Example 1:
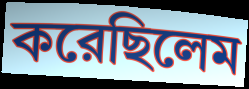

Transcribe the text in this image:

করেছিলেম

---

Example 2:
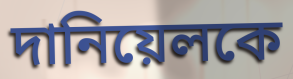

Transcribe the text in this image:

দানিয়েলকে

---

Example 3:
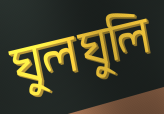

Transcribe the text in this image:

ঘুলঘুলি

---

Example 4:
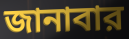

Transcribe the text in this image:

জানাবার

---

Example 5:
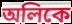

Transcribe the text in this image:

অলিকে